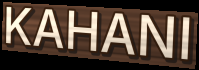
KAHANI